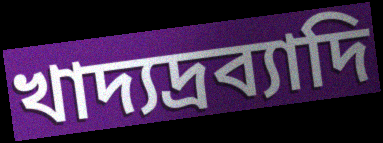
খাদ্যদ্রব্যাদি